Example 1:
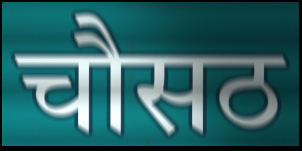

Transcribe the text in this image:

चौसठ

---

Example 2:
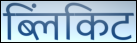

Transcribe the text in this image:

ब्लिंकिट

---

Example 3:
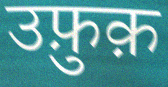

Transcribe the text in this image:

उफ़ुक़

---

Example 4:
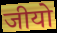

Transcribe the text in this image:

जीयो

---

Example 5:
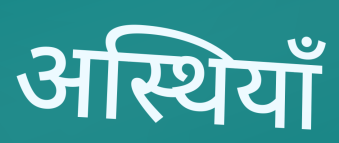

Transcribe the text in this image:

अस्थियाँ